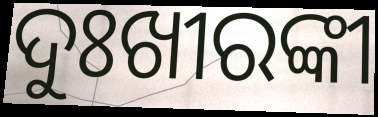
ଦୁଃଖୀରଙ୍କୀ